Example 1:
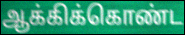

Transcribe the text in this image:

ஆக்கிக்கொண்ட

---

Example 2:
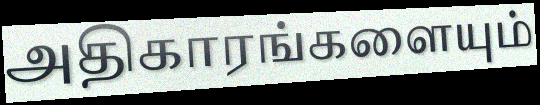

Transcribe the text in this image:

அதிகாரங்களையும்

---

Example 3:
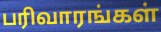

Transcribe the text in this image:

பரிவாரங்கள்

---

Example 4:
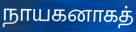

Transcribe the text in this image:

நாயகனாகத்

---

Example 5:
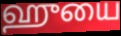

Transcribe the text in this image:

ஹுயை